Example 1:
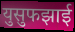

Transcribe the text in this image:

युसुफझाई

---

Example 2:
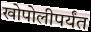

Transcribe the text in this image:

खोपोलीपर्यंत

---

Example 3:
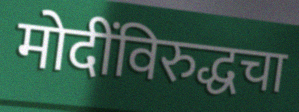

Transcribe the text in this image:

मोदींविरुद्धचा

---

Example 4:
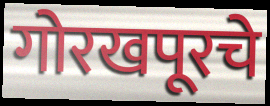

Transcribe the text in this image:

गोरखपूरचे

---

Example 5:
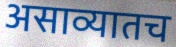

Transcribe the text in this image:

असाव्यातच